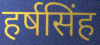
हर्षसिंह